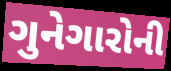
ગુનેગારોની